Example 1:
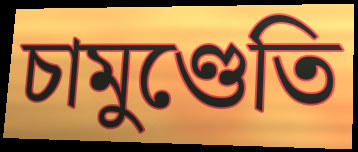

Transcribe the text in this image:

চামুণ্ডেতি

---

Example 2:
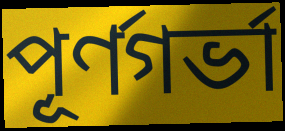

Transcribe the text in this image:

পূর্ণগর্ভা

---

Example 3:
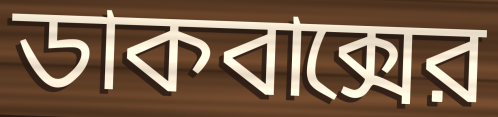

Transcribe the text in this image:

ডাকবাক্সের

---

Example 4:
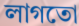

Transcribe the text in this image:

লাগতো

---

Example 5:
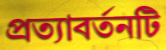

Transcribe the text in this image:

প্রত্যাবর্তনটি